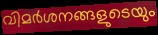
വിമർശനങ്ങളുടെയും